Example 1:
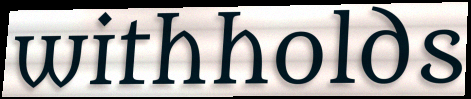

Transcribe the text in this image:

withholds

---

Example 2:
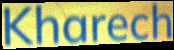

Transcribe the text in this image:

Kharech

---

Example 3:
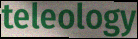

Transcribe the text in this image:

teleology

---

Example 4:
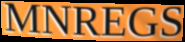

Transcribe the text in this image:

MNREGS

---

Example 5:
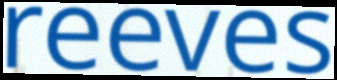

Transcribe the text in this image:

reeves